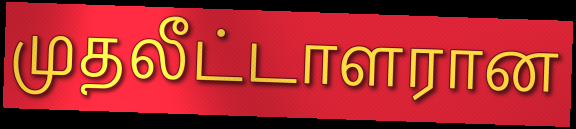
முதலீட்டாளரான